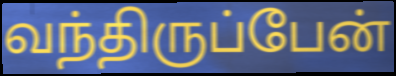
வந்திருப்பேன்